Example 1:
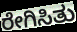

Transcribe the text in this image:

ರೇಗಿಸಿತು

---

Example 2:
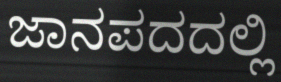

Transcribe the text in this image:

ಜಾನಪದದಲ್ಲಿ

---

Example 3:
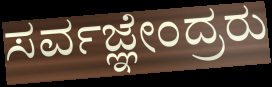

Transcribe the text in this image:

ಸರ್ವಜ್ಞೇಂದ್ರರು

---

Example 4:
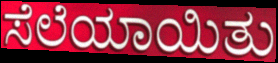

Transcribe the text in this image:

ಸೆಲೆಯಾಯಿತು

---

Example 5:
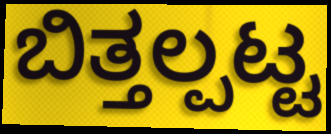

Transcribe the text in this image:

ಬಿತ್ತಲ್ಪಟ್ಟ